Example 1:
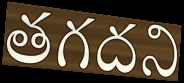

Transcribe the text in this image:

తగదని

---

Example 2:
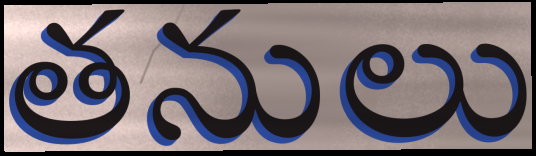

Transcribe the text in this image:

తనులు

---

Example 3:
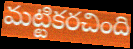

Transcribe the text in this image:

మట్టికరచింది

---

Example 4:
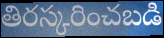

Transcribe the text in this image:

తిరస్కరించబడి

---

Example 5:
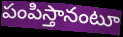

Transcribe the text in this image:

పంపిస్తానంటూ